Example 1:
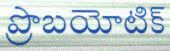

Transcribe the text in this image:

ప్రొబయోటిక్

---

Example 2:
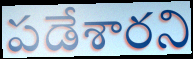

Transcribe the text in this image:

పడేశారని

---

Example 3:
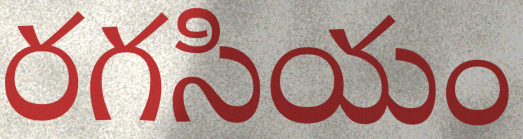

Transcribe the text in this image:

రగసియం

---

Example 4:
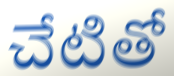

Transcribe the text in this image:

చేటితో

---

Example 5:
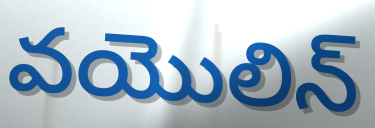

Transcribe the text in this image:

వయొలిన్